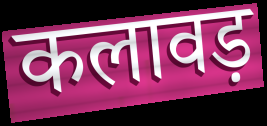
कलावड़